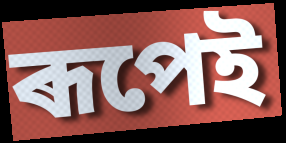
ৰূপেই